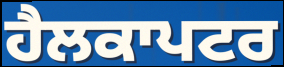
ਹੈਲਕਾਪਟਰ